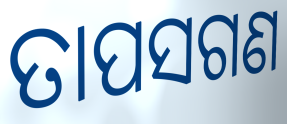
ତାପସଗଣ